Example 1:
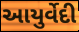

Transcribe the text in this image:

આયુર્વેદી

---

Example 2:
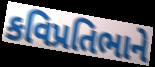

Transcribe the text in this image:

કવિપ્રતિભાને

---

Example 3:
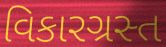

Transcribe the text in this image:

વિકારગ્રસ્ત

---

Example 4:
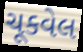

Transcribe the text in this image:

ચૂકવેલ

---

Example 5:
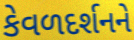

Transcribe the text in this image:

કેવળદર્શનને